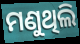
ମଣୁଥିଲି